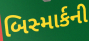
બિસ્માર્કની